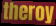
theroy